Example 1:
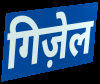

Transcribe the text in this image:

गिज़ेल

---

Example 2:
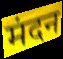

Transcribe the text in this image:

मंदन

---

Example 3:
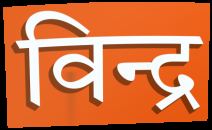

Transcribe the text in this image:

विन्द्र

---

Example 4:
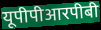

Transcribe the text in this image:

यूपीपीआरपीबी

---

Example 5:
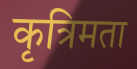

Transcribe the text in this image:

कृत्रिमता